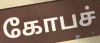
கோபச்